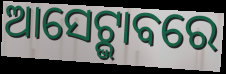
ଆସେଟ୍ଭାବରେ